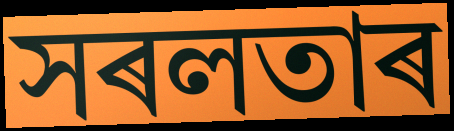
সৰলতাৰ